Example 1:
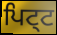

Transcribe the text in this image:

ਪਿਟ੍ਟ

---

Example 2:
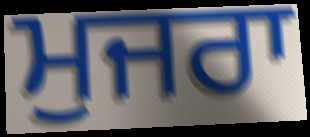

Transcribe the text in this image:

ਮੁਜਰਾ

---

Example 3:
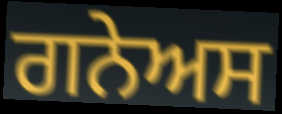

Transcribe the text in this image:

ਗਨੇਅਸ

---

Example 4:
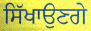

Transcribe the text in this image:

ਸਿੱਖਾਉਣਗੇ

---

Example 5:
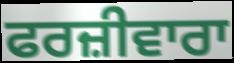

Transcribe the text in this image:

ਫਰਜ਼ੀਵਾਰਾ